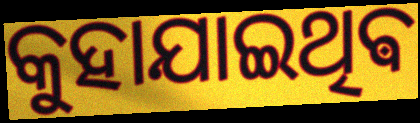
କୁହାଯାଇଥିଵ